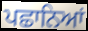
ਪਛਾਨਿਆਂ